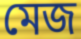
মেজ